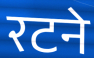
रटने